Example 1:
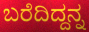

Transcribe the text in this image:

ಬರೆದಿದ್ದನ್ನ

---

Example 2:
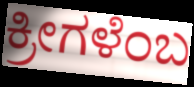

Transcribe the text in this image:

ಕ್ರೀಗಳೆಂಬ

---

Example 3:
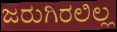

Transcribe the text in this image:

ಜರುಗಿರಲಿಲ್ಲ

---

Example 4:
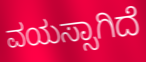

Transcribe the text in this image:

ವಯಸ್ಸಾಗಿದೆ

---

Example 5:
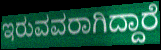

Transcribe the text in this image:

ಇರುವವರಾಗಿದ್ದಾರೆ